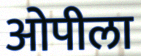
ओपीला